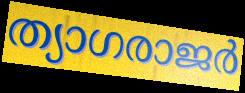
ത്യാഗരാജർ